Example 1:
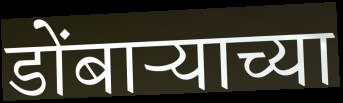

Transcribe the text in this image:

डोंबाऱ्याच्या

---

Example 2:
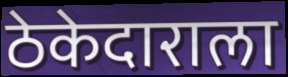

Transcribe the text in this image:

ठेकेदाराला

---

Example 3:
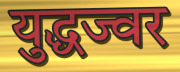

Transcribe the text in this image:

युद्धज्वर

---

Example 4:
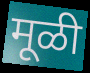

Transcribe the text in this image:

मूळी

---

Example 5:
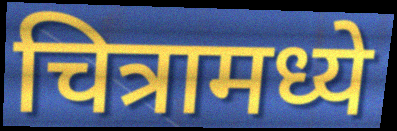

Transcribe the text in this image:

चित्रामध्ये